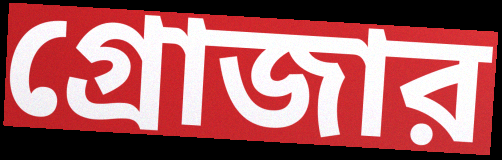
গ্রোজার